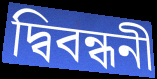
দ্বিবন্ধনী